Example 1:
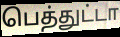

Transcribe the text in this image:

பெத்துட்டா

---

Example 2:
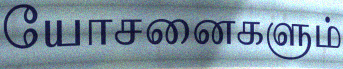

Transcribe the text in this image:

யோசனைகளும்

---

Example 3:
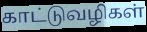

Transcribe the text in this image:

காட்டுவழிகள்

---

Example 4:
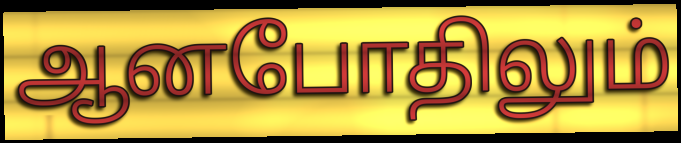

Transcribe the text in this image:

ஆனபோதிலும்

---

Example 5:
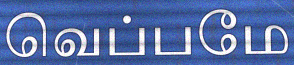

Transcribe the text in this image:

வெப்பமே